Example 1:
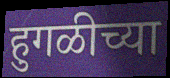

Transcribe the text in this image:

हुगळीच्या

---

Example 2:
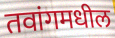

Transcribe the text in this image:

तवांगमधील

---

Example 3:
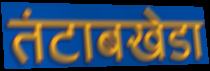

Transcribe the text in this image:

तंटाबखेडा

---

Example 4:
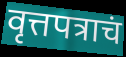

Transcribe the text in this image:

वृत्तपत्राचं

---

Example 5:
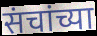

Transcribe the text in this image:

संचांच्या